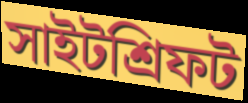
সাইটশ্রিফট